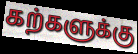
கற்களுக்கு